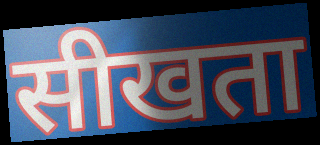
सीखता